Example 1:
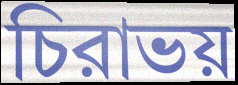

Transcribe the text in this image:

চিরাভয়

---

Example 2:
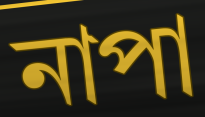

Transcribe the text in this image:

নাপা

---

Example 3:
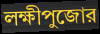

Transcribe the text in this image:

লক্ষীপুজোর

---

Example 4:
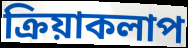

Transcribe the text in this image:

ক্রিয়াকলাপ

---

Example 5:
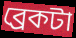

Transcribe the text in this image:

ব্রেকটা